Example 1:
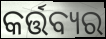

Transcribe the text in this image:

କର୍ତ୍ତବ୍ୟର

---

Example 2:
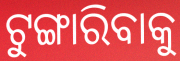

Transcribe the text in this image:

ଟୁଙ୍ଗାରିବାକୁ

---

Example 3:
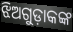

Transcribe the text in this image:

ଝିଅଗୁଡ଼ାକଙ୍କ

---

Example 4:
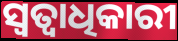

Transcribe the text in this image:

ସ୍ଵତ୍ୱାଧିକାରୀ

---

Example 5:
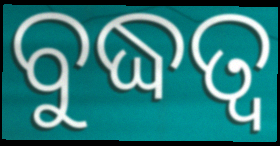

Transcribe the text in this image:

ବୁଦ୍ଧତ୍ୱ